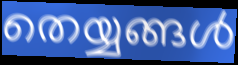
തെയ്യങ്ങൾ